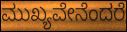
ಮುಖ್ಯವೇನೆಂದರೆ